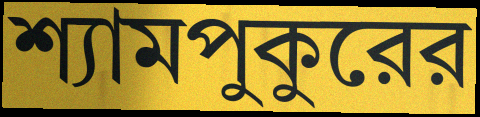
শ্যামপুকুরের